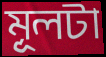
মূলটা